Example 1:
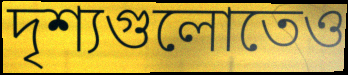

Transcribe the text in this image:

দৃশ্যগুলোতেও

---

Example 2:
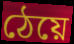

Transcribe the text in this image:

ঠেয়ে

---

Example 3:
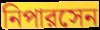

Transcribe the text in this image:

নিপারসেন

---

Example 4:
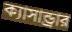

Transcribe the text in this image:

ক্যাসান্ড্রার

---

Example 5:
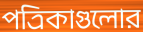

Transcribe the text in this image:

পত্রিকাগুলোর